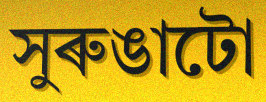
সুৰুঙাটো